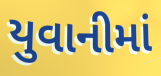
યુવાનીમાં